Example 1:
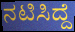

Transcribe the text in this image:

ನಟಿಸಿದ್ದೆ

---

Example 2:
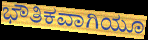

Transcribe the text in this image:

ಭೌತಿಕವಾಗಿಯೂ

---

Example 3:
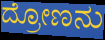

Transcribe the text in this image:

ದ್ರೋಣನು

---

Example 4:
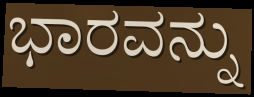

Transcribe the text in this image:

ಭಾರವನ್ನು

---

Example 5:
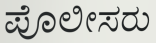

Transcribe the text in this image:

ಪೊಲೀಸರು